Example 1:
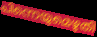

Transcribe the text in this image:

പിന്നെയുമെഴുതി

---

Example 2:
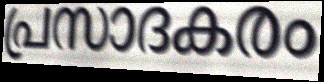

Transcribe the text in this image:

പ്രസാദകരം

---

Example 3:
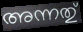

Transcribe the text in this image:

അന്നതു്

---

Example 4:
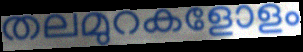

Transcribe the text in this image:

തലമുറകളോളം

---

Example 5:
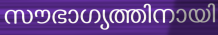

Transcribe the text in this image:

സൗഭാഗ്യത്തിനായി